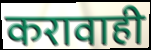
करावाही